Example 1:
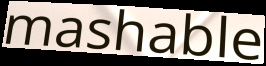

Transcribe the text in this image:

mashable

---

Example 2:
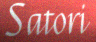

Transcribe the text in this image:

Satori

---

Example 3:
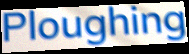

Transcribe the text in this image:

Ploughing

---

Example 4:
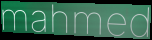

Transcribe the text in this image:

mahmed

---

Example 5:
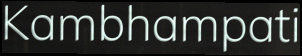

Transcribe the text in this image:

Kambhampati